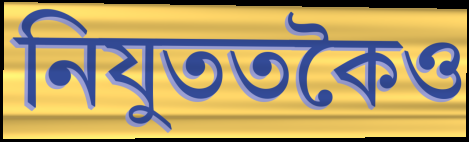
নিযুততকৈও